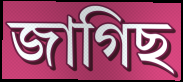
জাগিছ